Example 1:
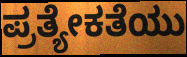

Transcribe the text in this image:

ಪ್ರತ್ಯೇಕತೆಯು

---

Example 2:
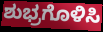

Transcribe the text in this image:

ಶುಭ್ರಗೊಳಿಸಿ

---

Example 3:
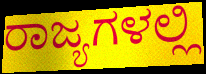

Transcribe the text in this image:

ರಾಜ್ಯಗಳಲ್ಲಿ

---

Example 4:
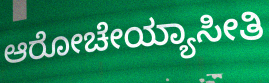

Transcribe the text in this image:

ಆರೋಚೇಯ್ಯಾಸೀತಿ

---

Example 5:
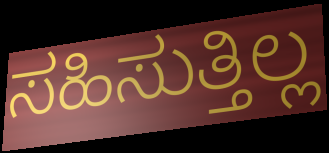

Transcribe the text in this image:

ಸಹಿಸುತ್ತಿಲ್ಲ